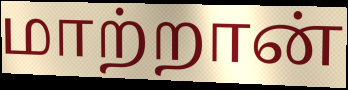
மாற்றான்